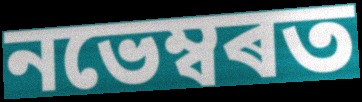
নভেম্বৰত